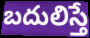
బదులిస్తే